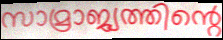
സാമ്രാജ്യത്തിന്റെ